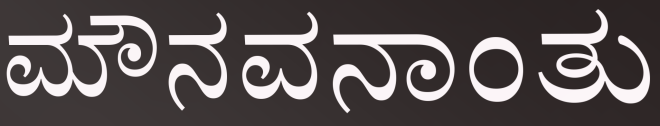
ಮೌನವನಾಂತು